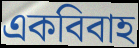
একবিবাহ